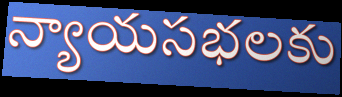
న్యాయసభలకు